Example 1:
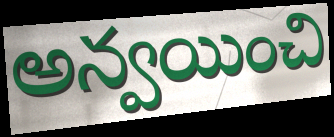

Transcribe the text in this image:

అన్వయించి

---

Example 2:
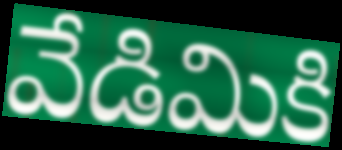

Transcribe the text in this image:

వేడిమికి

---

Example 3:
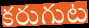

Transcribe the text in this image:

కరుగుట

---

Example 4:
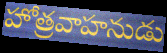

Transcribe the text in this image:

హోత్రవాహనుడు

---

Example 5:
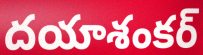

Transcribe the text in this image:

దయాశంకర్